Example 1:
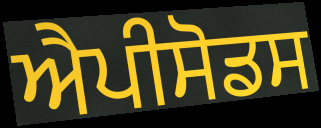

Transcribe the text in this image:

ਐਪੀਸੋਡਸ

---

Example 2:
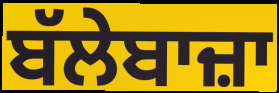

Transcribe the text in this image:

ਬੱਲੇਬਾਜ਼ਾ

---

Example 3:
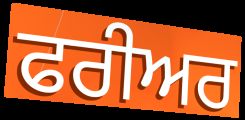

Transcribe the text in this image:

ਫਰੀਅਰ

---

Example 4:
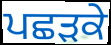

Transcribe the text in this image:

ਪਛੜਕੇ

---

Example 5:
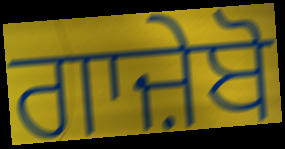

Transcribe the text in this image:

ਗਾਜ਼ੇਬੋ